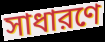
সাধারণে